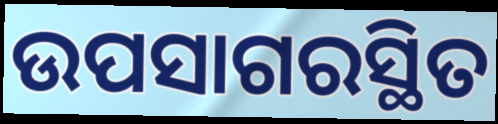
ଉପସାଗରସ୍ଥିତ